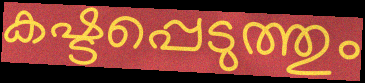
കഷ്ടപ്പെടുത്തും